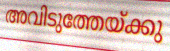
അവിടുത്തേയ്ക്കു